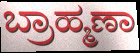
ಬ್ರಾಹ್ಮಣಾ